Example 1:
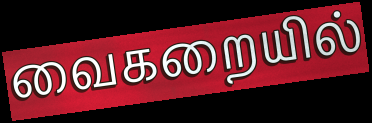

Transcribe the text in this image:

வைகறையில்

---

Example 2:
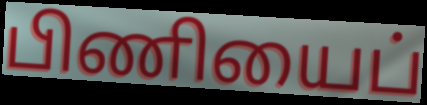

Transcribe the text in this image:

பிணியைப்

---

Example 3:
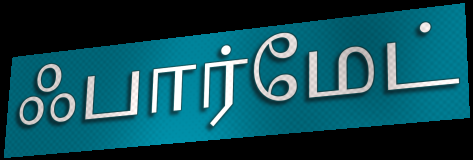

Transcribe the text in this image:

ஃபார்மேட்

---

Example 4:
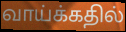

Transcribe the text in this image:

வாய்க்கதில்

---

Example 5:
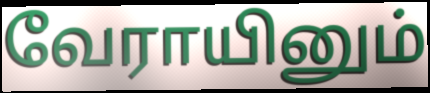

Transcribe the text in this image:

வேராயினும்